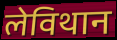
लेविथान